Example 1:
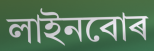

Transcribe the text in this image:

লাইনবোৰ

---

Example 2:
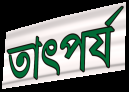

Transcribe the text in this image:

তাৎপৰ্য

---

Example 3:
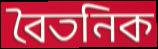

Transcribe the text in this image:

বৈতনিক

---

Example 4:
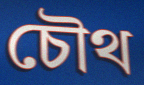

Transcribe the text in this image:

চৌথ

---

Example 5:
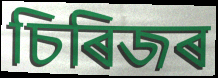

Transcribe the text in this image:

চিৰিজৰ